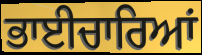
ਭਾਈਚਾਰਿਆਂ